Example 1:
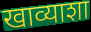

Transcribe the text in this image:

खाव्याशा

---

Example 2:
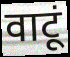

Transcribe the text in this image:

वाटूं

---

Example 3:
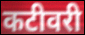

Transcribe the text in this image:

कटीवरी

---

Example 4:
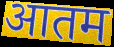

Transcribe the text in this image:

आतम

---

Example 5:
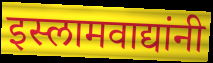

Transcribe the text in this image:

इस्लामवाद्यांनी